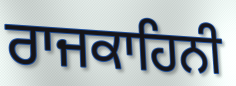
ਰਾਜਕਾਹਿਨੀ